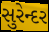
સુરેન્દર